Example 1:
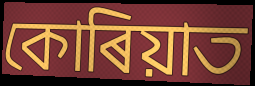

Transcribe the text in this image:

কোৰিয়াত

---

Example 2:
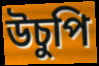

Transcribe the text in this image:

উচুপি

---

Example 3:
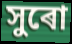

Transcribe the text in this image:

সুৰো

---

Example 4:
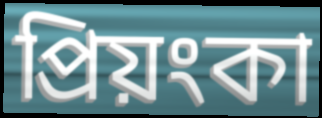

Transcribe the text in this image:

প্ৰিয়ংকা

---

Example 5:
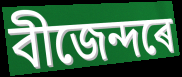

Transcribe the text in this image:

বীজেন্দৰে